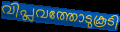
വിപ്ലവത്തോടുകൂടി